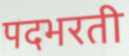
पदभरती